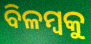
ବିଳମ୍ୱକୁ